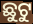
ଛୁଟୁ